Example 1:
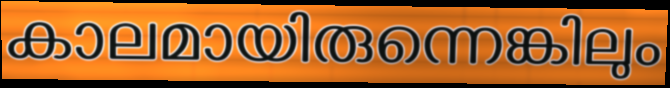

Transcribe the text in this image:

കാലമായിരുന്നെങ്കിലും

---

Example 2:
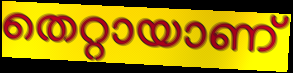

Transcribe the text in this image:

തെറ്റായാണ്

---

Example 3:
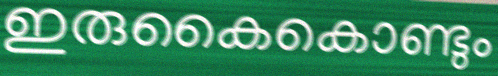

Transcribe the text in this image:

ഇരുകൈകൊണ്ടും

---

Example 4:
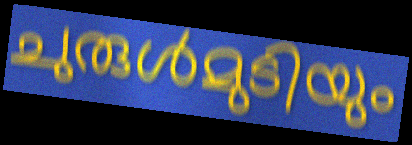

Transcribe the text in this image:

ചുരുൾമുടിയും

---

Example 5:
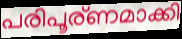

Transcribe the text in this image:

പരിപൂര്ണമാക്കി